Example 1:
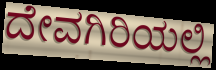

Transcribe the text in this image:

ದೇವಗಿರಿಯಲ್ಲಿ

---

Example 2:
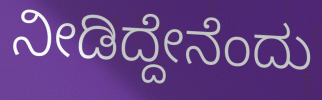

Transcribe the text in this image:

ನೀಡಿದ್ದೇನೆಂದು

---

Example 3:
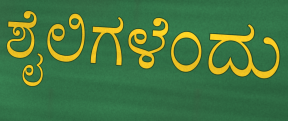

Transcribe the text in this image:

ಶೈಲಿಗಳೆಂದು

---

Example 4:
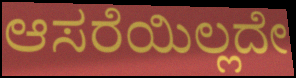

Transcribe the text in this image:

ಆಸರೆಯಿಲ್ಲದೇ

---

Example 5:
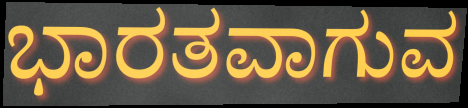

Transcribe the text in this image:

ಭಾರತವಾಗುವ